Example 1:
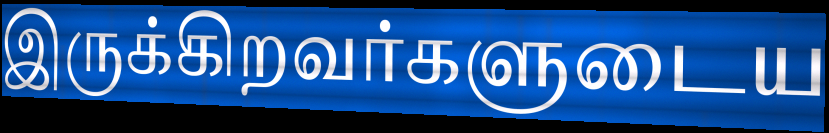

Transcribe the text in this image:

இருக்கிறவர்களுடைய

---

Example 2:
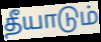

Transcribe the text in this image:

தீயாடும்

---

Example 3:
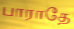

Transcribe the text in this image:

பாராதே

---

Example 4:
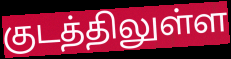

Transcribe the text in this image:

குடத்திலுள்ள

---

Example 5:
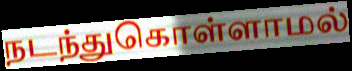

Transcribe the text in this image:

நடந்துகொள்ளாமல்